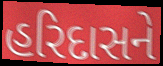
હરિદાસને